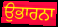
ਉਭਾਰਨਾ